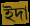
ইদা